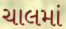
ચાલમાં